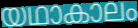
യഥാകാലം